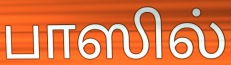
பாஸில்